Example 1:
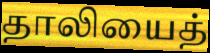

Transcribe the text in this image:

தாலியைத்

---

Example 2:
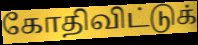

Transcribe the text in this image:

கோதிவிட்டுக்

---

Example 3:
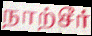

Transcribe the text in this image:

நாற்சீர்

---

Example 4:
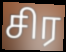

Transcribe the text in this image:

சிர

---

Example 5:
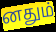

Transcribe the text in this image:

னதும்